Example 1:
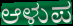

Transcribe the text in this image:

ಆಳುಪ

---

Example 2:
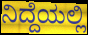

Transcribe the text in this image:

ನಿದ್ದೆಯಲ್ಲಿ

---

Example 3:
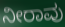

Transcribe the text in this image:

ನೀರಾವು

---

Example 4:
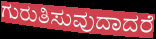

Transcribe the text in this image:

ಗುರುತಿಸುವುದಾದರೆ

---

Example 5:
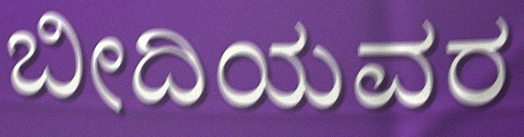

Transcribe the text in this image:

ಬೀದಿಯವರ